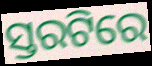
ସ୍ତରଟିରେ